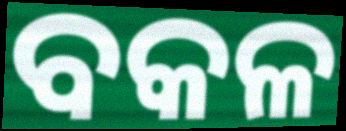
ବକଳ